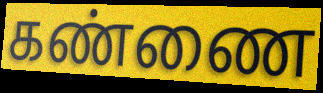
கண்ணை